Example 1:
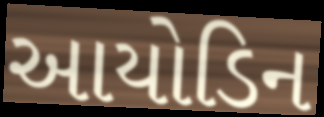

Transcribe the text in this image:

આયોડિન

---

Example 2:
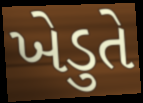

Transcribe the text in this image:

ખેડુતે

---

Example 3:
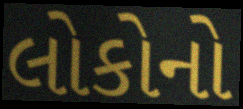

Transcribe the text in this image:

લોકોનો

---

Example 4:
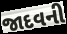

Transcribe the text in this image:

જાદવની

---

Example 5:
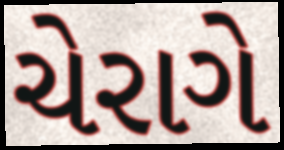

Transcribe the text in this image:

ચેરાગે